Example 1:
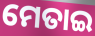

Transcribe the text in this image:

ମେତାଇ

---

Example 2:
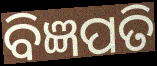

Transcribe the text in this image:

ବିଜ୍ଞପତି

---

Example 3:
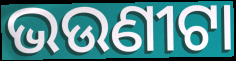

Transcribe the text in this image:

ଭଉଣୀଟା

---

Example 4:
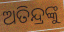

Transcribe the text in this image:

ଅତିନ୍ଦ୍ରଙ୍କୁ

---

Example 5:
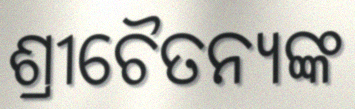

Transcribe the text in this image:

ଶ୍ରୀଚୈତନ୍ୟଙ୍କ